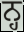
ਨ੍ਹ